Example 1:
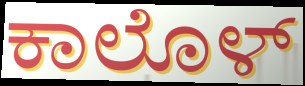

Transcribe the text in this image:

ಕಾಲೊಳ್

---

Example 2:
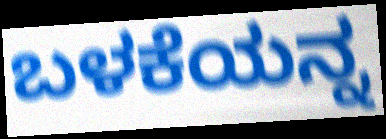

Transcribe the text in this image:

ಬಳಕೆಯನ್ನ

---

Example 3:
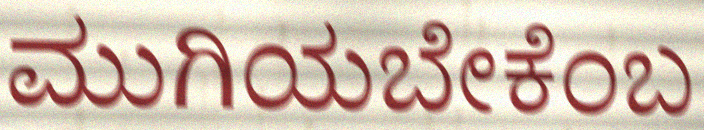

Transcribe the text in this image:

ಮುಗಿಯಬೇಕೆಂಬ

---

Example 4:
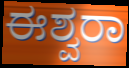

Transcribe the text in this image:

ಈಶ್ವರಾ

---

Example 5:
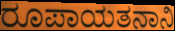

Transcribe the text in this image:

ರೂಪಾಯತನಾನಿ